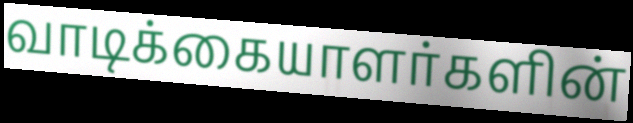
வாடிக்கையாளர்களின்